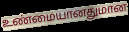
உண்மையானதுமான